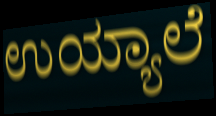
ಉಯ್ಯಾಲೆ